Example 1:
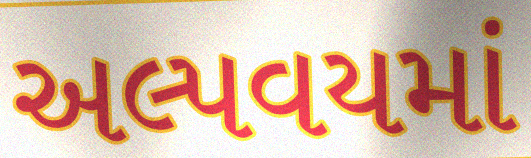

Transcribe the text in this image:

અલ્પવયમાં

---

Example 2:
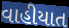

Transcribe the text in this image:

વાહીયાત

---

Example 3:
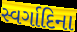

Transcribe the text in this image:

સ્વર્ગાદિના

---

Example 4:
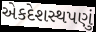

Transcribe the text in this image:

એકદેશસ્થપણું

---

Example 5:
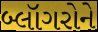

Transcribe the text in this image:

બ્લૉગરોને